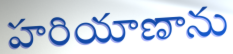
హరియాణాను